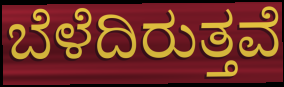
ಬೆಳೆದಿರುತ್ತವೆ